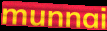
munnai